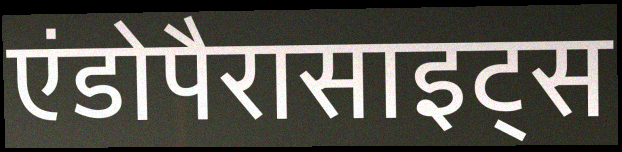
एंडोपैरासाइट्स